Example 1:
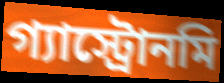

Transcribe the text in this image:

গ্যাস্ট্রোনমি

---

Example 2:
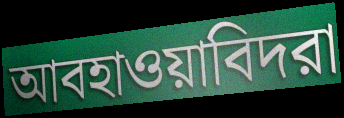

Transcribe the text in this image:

আবহাওয়াবিদরা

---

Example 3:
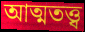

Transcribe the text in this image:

আত্মতত্ত্ব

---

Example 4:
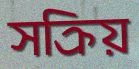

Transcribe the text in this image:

সক্রিয়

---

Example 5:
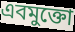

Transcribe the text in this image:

এবমুক্তো